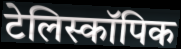
टेलिस्कॉपिक